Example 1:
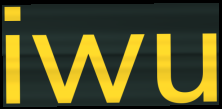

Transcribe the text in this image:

iwu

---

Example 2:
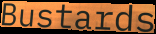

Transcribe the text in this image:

Bustards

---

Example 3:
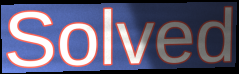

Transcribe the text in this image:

Solved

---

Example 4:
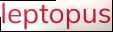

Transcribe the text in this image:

leptopus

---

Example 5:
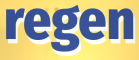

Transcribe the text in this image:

regen